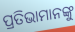
ପ୍ରତିଭାମାନଙ୍କୁ